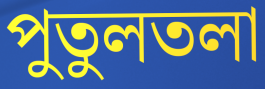
পুতুলতলা